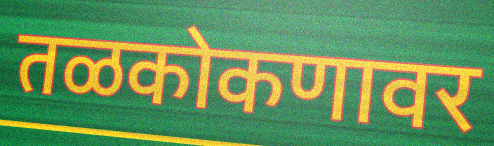
तळकोकणावर